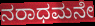
ನರಾಧಮನೇ